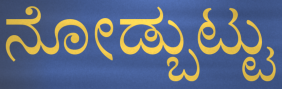
ನೋಡ್ಬುಟ್ಟು